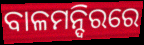
ବାଳମନ୍ଦିରରେ